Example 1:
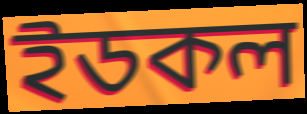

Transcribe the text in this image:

ইডকল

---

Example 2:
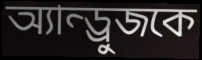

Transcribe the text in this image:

অ্যান্ড্রুজকে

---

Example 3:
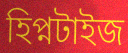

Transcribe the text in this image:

হিপ্নটাইজ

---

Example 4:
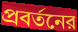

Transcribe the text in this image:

প্রবর্তনের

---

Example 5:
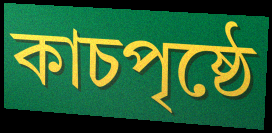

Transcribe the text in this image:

কাচপৃষ্ঠে